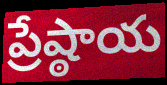
ప్రేష్ఠాయ